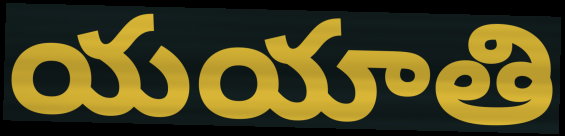
యయాతి